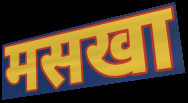
मसखा